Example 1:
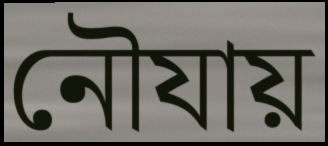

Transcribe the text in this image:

নৌযায়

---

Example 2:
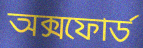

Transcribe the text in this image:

অক্সফোৰ্ড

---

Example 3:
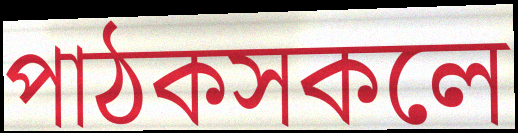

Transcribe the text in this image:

পাঠকসকলে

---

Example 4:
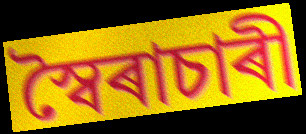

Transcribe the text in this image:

স্বৈৰাচাৰী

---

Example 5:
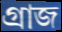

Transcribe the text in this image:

গ্ৰাজ